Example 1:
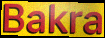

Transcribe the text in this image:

Bakra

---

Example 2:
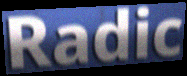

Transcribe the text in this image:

Radic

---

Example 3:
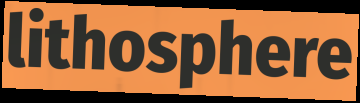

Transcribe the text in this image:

lithosphere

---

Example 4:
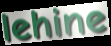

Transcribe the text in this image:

lehine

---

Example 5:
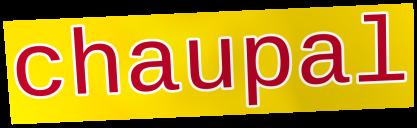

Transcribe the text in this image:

chaupal